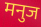
मनुज